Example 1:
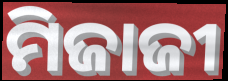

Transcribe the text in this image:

ମିଜାଜୀ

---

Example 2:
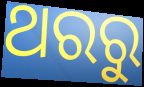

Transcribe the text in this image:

ଥରରୁ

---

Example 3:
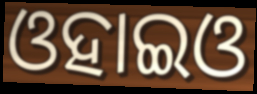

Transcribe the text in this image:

ଓହାଇଓ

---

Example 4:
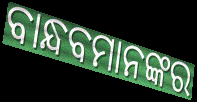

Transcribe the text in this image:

ବାନ୍ଧବମାନଙ୍କର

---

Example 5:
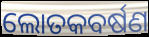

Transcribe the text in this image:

ଲୋତକବର୍ଷଣ